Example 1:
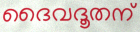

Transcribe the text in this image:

ദൈവദൂതന്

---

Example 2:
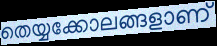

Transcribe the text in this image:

തെയ്യക്കോലങ്ങളാണ്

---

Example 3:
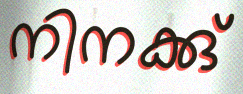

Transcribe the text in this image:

നിനക്കു്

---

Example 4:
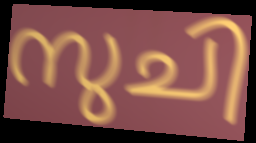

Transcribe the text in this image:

സുചി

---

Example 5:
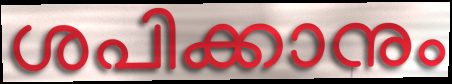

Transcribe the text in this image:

ശപിക്കാനും